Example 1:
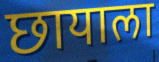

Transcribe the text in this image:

छायाला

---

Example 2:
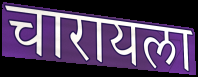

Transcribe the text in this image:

चारायला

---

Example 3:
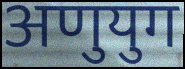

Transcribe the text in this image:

अणुयुग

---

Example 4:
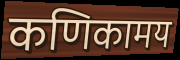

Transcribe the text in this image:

कणिकामय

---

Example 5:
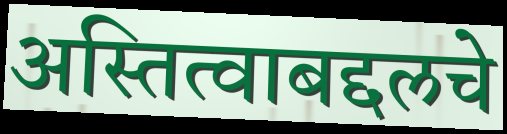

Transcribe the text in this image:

अस्तित्वाबद्दलचे